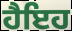
ਹੈਇਹ